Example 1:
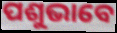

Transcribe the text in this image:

ପଶୁଭାବେ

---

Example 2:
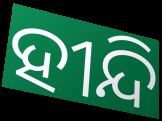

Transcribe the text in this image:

ହୀନ୍ଦି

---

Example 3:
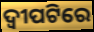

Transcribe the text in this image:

ଦ୍ୱୀପଟିରେ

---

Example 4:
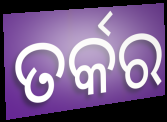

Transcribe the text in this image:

ତର୍କର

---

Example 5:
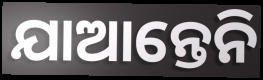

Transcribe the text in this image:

ଯାଆନ୍ତେନି